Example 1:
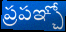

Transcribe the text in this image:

ప్రపఞ్చో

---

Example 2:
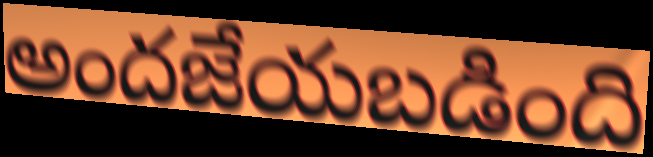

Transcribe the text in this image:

అందజేయబడింది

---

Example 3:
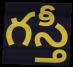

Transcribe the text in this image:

గస్తీ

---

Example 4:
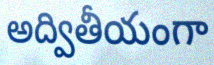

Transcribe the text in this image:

అద్వితీయంగా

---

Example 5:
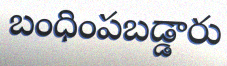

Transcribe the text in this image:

బంధింపబడ్డారు